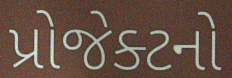
પ્રોજેક્ટનો